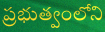
ప్రభుత్వంలోని